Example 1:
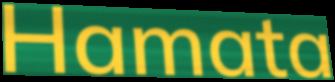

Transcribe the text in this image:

Hamata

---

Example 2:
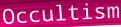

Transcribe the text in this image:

Occultism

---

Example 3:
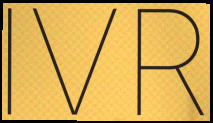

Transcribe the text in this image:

IVR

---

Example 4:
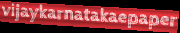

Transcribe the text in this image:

vijaykarnatakaepaper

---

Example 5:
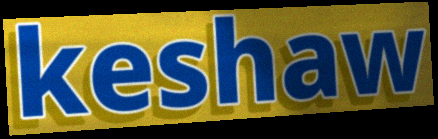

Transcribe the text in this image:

keshaw